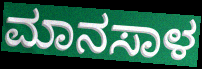
ಮಾನಸಾಳ